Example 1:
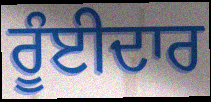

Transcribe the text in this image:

ਰੂੰਈਦਾਰ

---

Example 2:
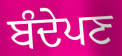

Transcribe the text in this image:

ਬੰਦੇਪਣ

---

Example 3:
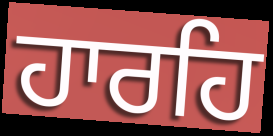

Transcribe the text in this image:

ਹਾਰਹਿ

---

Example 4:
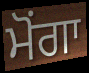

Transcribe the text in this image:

ਮੋਂਗਾ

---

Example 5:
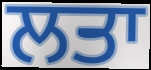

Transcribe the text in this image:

ਲਤਾ